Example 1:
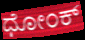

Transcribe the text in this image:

ಧೋಂಕ್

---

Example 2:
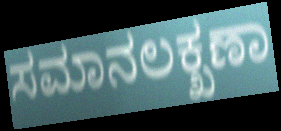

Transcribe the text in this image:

ಸಮಾನಲಕ್ಖಣಾ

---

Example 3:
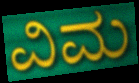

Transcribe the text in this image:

ವಿಮ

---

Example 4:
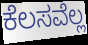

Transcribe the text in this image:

ಕೆಲಸವೆಲ್ಲ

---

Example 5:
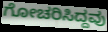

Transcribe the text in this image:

ಗೋಚರಿಸಿದ್ದವು